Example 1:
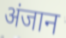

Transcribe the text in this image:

अंजान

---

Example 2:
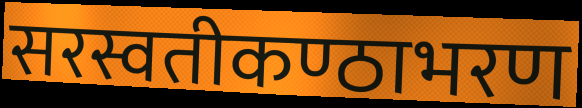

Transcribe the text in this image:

सरस्वतीकण्ठाभरण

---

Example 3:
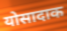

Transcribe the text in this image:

योसादाक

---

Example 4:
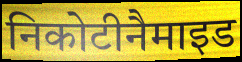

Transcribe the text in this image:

निकोटीनैमाइड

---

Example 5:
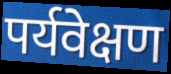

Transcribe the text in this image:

पर्यवेक्षण